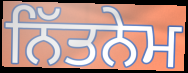
ਨਿੱਤਨੇਮ